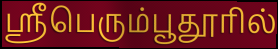
ஸ்ரீபெரும்பூதூரில்